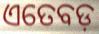
ଏତେବଡ଼